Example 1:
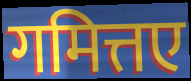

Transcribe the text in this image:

गमित्तए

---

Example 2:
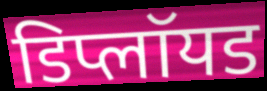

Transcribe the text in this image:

डिप्लॉयड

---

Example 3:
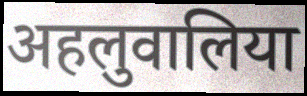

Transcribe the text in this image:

अहलुवालिया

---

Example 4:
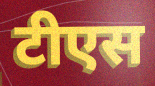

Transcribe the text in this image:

टीएस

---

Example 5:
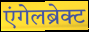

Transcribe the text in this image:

एंगेलब्रेक्ट